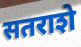
सतराशे